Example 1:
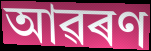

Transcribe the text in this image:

আৱৰণ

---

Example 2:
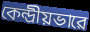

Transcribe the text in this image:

কেন্দ্ৰীয়ভাৱে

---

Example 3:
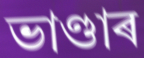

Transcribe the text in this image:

ভাণ্ডাৰ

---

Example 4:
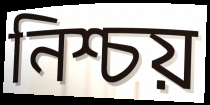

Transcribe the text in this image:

নিশ্চয়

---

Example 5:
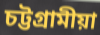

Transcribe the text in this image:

চট্টগ্ৰামীয়া